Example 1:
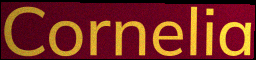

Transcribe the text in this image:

Cornelia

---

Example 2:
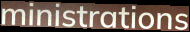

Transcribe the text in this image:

ministrations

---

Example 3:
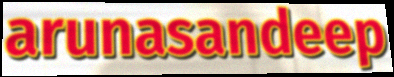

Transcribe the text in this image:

arunasandeep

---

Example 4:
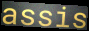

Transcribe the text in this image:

assis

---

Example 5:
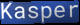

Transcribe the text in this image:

Kasper